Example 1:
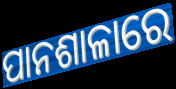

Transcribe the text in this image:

ପାନଶାଳାରେ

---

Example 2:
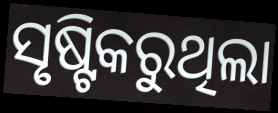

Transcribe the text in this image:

ସୃଷ୍ଟିକରୁଥିଲା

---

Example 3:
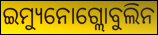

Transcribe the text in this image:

ଇମ୍ୟୁନୋଗ୍ଲୋବୁଲିନ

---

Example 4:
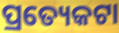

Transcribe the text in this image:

ପ୍ରତ୍ୟେକଟା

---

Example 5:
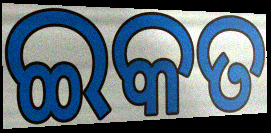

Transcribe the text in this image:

ଇକତ